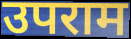
उपराम